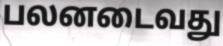
பலனடைவது